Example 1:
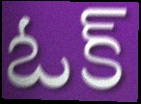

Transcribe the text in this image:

ఓక్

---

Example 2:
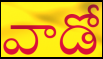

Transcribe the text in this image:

వాడో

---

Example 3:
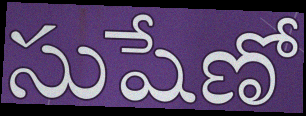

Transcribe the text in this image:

సుషేణో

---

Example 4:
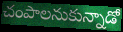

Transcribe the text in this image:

చంపాలనుకున్నాడో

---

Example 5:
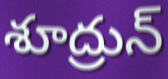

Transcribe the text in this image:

శూద్రున్